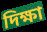
দিক্ষা